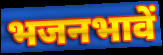
भजनभावें